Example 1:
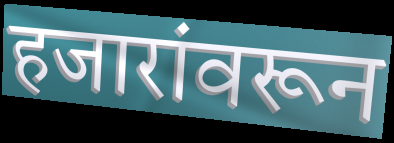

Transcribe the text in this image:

हजारांवरून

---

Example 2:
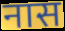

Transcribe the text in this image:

नास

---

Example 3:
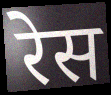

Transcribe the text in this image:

रेस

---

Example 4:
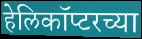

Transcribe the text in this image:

हेलिकॉप्टरच्या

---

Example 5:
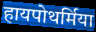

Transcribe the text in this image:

हायपोथर्मिया